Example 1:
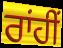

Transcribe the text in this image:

ਰਾਂਹੀਂ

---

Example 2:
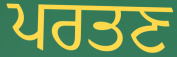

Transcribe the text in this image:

ਪਰਤਣ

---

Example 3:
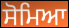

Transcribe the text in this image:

ਸੋਮਿਆ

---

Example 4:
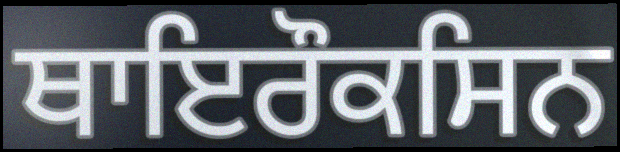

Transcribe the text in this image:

ਥਾਇਰੌਕਸਿਨ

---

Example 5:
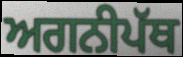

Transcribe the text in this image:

ਅਗਨੀਪੱਥ